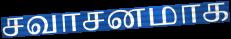
சவாசனமாக